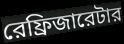
রেফ্রিজারেটার